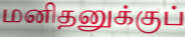
மனிதனுக்குப்